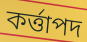
কৰ্ত্তাপদ